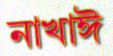
নাখাঈ